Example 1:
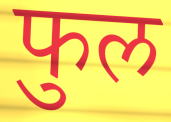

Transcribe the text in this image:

फुल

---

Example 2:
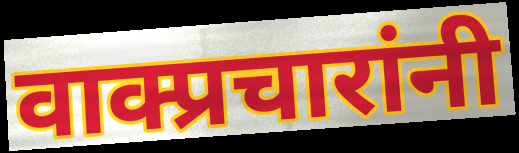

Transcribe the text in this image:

वाक्प्रचारांनी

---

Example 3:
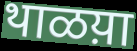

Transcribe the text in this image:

थाळय़ा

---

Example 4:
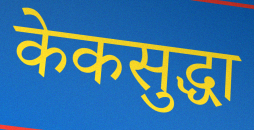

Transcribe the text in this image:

केकसुद्धा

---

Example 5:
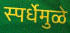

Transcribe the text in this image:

स्पर्धेमुळे